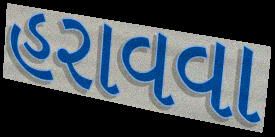
હરાવવા